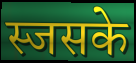
स्जसके